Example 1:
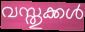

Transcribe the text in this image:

വസ്തുക്കൾ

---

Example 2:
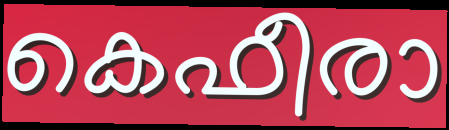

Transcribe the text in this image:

കെഫീരാ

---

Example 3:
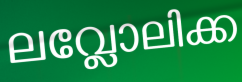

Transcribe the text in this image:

ലവ്ലോലിക്ക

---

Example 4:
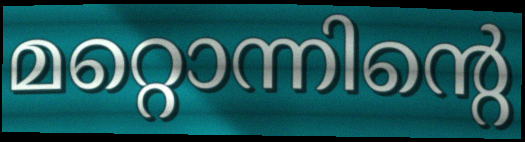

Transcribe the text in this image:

മറ്റൊന്നിന്റെ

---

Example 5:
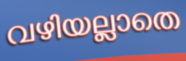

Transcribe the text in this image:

വഴിയല്ലാതെ